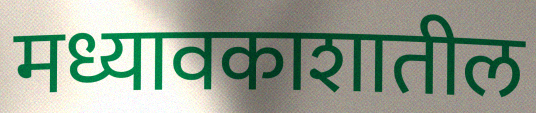
मध्यावकाशातील